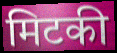
मिटकी